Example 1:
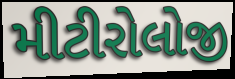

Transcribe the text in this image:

મીટીરોલોજી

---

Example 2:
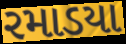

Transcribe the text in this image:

રમાડયા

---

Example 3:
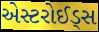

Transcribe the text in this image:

એસ્ટરોઈડ્સ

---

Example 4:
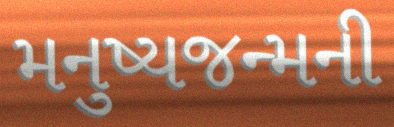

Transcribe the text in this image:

મનુષ્યજન્મની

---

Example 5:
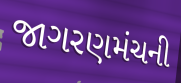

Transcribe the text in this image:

જાગરણમંચની